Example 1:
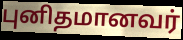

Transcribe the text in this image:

புனிதமானவர்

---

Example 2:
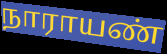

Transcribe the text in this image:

நாராயண்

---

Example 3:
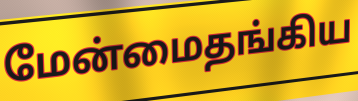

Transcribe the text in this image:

மேன்மைதங்கிய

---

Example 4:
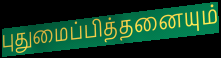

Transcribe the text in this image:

புதுமைப்பித்தனையும்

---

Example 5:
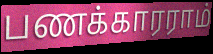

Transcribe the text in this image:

பணக்காரராம்